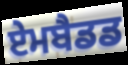
ਏਮਬੈਡਡ